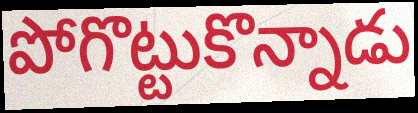
పోగొట్టుకొన్నాడు